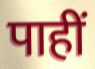
पाहीं